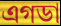
এগডা